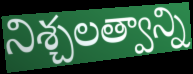
నిశ్చలత్వాన్ని